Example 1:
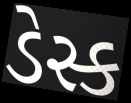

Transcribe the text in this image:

ડેસ્ક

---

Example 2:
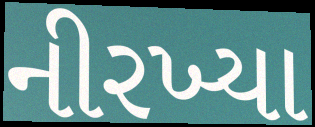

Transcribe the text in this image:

નીરખ્યા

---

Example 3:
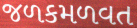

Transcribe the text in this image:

જળકમળવત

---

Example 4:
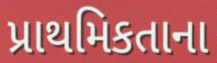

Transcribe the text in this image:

પ્રાથમિકતાના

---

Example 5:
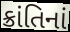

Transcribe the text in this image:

ક્રાંતિનાં